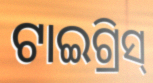
ଟାଇଗ୍ରିସ୍